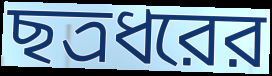
ছত্রধরের